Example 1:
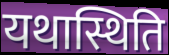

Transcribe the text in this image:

यथास्थिति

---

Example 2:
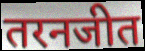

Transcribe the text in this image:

तरनजीत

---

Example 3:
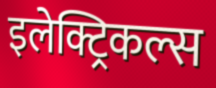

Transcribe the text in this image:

इलेक्ट्रिकल्‍स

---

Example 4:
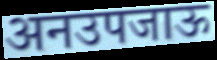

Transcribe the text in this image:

अनउपजाऊ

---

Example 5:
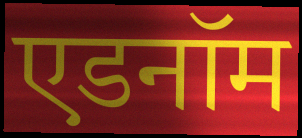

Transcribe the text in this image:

एडनॉम